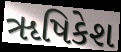
ૠષિકેશ